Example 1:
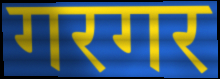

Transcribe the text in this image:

गरगर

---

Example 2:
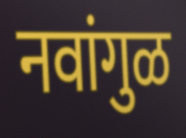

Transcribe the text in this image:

नवांगुळ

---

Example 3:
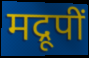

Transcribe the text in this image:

मद्रूपीं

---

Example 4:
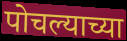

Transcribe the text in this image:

पोचल्याच्या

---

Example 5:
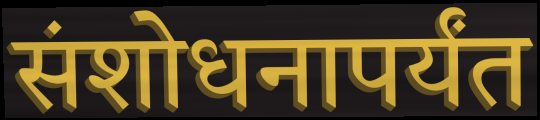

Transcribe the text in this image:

संशोधनापर्यंत